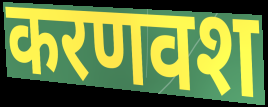
करणवश